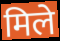
मिले